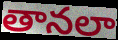
తానలా